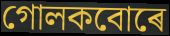
গোলকবোৰে